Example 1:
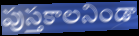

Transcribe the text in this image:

పుస్తకాలనిండా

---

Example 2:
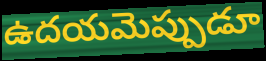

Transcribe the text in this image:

ఉదయమెప్పుడూ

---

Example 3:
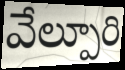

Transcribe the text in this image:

వేల్పూరి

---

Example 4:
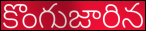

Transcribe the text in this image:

కొంగుజారిన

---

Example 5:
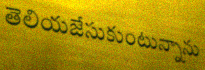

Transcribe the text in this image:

తెలియజేసుకుంటున్నాను